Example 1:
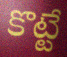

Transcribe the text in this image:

కొట్టే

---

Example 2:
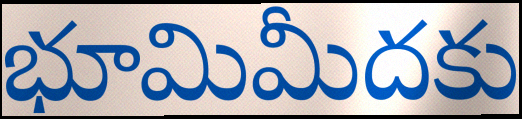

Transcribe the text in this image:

భూమిమీదకు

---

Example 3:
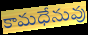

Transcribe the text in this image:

కామధేనువు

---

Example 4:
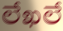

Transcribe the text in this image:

లేఖలే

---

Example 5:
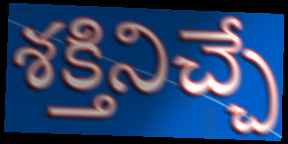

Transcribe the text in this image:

శక్తినిచ్చే